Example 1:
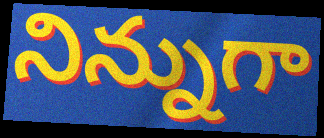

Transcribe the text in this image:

నిన్నుగా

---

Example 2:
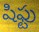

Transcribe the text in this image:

షిఫ్టు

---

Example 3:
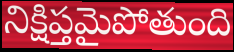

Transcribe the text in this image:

నిక్షిప్తమైపోతుంది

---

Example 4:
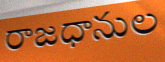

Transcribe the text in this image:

రాజధానుల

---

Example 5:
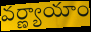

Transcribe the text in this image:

వర్ణ్యాయాం